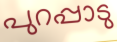
പുറപ്പാടു